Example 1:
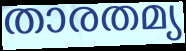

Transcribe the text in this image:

താരതമ്യ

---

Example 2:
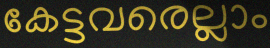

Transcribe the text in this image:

കേട്ടവരെല്ലാം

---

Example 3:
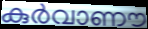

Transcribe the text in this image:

കുർവാണൗ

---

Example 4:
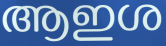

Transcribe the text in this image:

ആഇശ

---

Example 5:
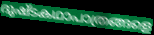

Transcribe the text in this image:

ദുഷ്ടകഥാപാത്രങ്ങളെ